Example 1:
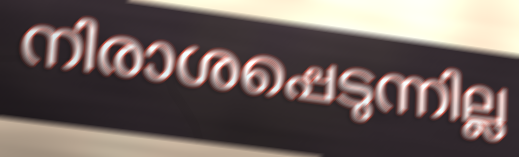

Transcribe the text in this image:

നിരാശപ്പെടുന്നില്ല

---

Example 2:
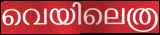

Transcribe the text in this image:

വെയിലെത്ര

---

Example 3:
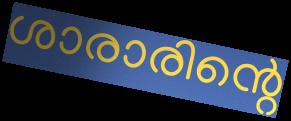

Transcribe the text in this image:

ശാരാരിന്റെ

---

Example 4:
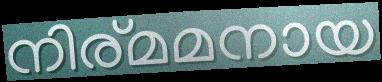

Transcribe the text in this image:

നിര്മമനായ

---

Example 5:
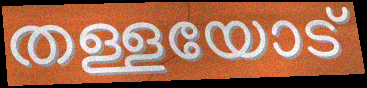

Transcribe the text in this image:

തള്ളയോട്